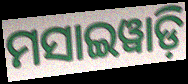
ମସାଇୱାଡ଼ି